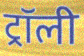
ट्रॉली